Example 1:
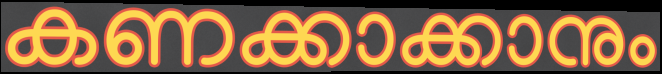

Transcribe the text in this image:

കണക്കാക്കാനും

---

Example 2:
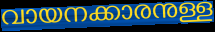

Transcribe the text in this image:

വായനക്കാരനുള്ള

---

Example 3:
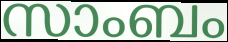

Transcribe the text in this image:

സാംബം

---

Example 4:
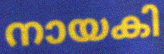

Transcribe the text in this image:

നായകി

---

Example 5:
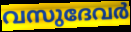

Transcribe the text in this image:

വസുദേവർ